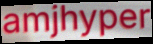
amjhyper